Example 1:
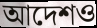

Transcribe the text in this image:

আদেশও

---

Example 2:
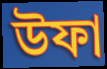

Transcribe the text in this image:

উফা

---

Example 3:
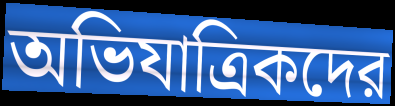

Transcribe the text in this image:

অভিযাত্রিকদের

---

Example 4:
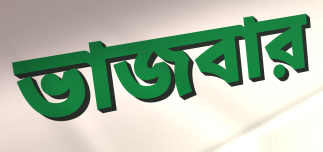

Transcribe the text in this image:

ভাজবার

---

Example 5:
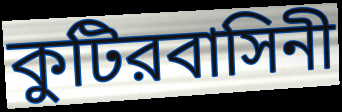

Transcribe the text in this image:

কুটিরবাসিনী